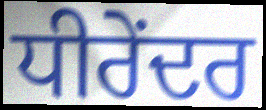
ਧੀਰੇਂਦਰ